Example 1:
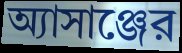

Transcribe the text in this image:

অ্যাসাঞ্জের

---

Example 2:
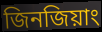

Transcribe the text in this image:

জিনজিয়াং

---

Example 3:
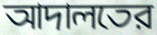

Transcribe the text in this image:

আদালতের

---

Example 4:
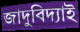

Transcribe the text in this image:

জাদুবিদ্যাই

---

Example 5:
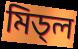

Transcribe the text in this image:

মিড্‌ল